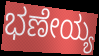
ಭಣೇಯ್ಯ